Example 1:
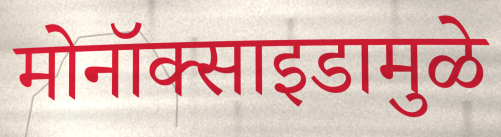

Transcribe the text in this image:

मोनॉक्साइडामुळे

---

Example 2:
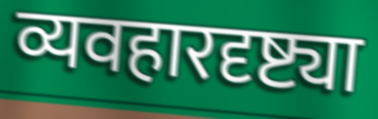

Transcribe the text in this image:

व्यवहारदृष्ट्या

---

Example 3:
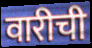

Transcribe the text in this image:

वारीची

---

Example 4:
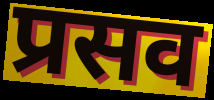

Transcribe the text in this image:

प्रसव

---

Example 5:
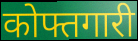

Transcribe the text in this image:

कोफ्तगारी